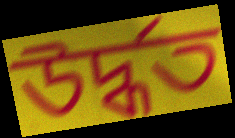
উৰ্দ্ধত